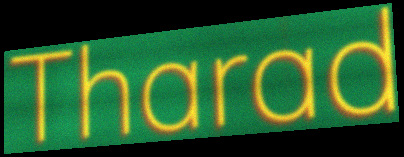
Tharad